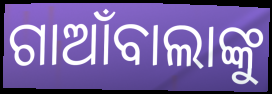
ଗାଆଁବାଲାଙ୍କୁ